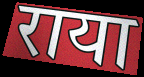
राया